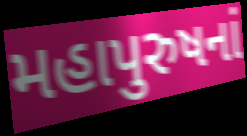
મહાપુરુષનાં